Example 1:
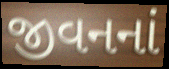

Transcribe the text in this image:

જીવનનાં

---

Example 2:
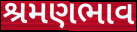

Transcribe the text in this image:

શ્રમણભાવ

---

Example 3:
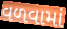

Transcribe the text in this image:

વળવામાં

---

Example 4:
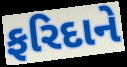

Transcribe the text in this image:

ફરિદાને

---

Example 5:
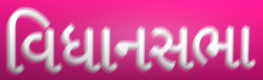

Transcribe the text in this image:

વિધાનસભા